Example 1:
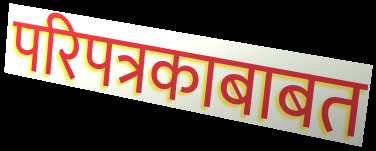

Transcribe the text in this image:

परिपत्रकाबाबत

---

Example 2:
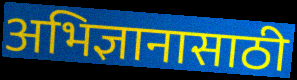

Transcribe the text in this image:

अभिज्ञानासाठी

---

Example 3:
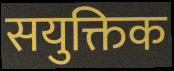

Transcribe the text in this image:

सयुक्तिक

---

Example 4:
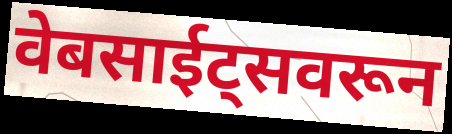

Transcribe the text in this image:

वेबसाईट्सवरून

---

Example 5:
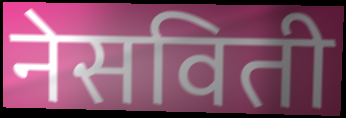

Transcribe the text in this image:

नेसविती